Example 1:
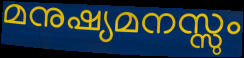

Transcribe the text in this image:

മനുഷ്യമനസ്സും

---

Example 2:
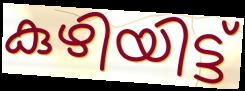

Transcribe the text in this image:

കുഴിയിട്ട്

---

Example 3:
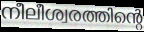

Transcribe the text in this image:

നീലീശ്വരത്തിന്റെ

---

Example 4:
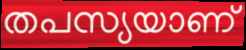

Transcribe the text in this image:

തപസ്യയാണ്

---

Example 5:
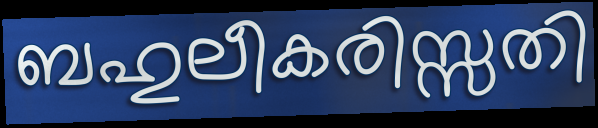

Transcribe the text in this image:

ബഹുലീകരിസ്സതി